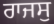
ਰਾਜਸੁ